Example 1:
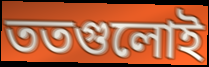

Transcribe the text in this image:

ততগুলোই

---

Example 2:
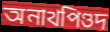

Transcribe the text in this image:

অনাথপিণ্ডদ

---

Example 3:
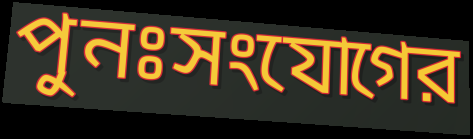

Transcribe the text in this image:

পুনঃসংযোগের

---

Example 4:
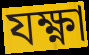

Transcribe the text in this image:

যক্ষ্ণা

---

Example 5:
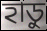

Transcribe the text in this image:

হাডু